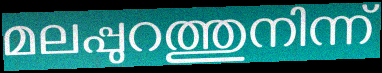
മലപ്പുറത്തുനിന്ന്